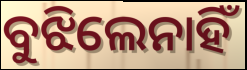
ବୁଝିଲେନାହିଁ